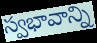
స్వభావాన్ని